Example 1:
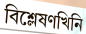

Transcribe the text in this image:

বিশ্লেষণখিনি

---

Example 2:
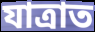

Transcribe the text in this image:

যাত্ৰাত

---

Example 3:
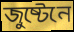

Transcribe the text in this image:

জুষ্টেনে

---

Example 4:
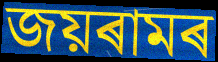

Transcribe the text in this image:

জয়ৰামৰ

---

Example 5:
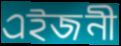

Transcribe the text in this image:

এইজনী